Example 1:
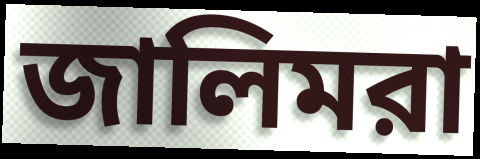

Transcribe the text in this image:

জালিমরা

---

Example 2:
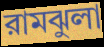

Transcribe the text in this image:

রামঝুলা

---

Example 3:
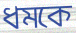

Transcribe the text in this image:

ধমকে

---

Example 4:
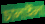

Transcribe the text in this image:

চালাইলা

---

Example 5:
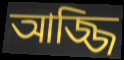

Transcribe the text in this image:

আজ্জি